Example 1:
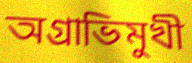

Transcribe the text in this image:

অগ্রাভিমুখী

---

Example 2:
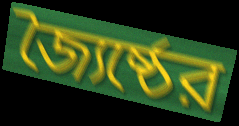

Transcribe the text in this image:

জ্যৈষ্ঠের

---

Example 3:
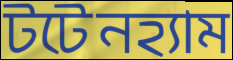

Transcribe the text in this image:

টটেনহ্যাম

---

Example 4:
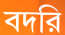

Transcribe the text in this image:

বদরি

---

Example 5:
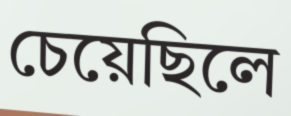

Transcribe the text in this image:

চেয়েছিলে